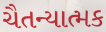
ચૈતન્યાત્મક